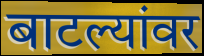
बाटल्यांवर